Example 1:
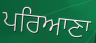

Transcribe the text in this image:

ਪਰਿਆਣਾ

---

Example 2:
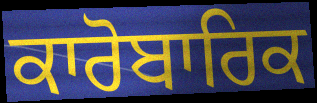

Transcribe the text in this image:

ਕਾਰੋਬਾਰਿਕ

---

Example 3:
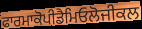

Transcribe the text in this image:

ਫਾਰਮਾਕੋਪੀਡੈਮਿਓਲੋਜੀਕਲ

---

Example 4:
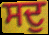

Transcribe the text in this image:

ਸਦੁ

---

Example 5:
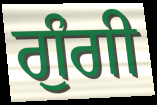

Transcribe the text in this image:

ਗੁੰਗੀ